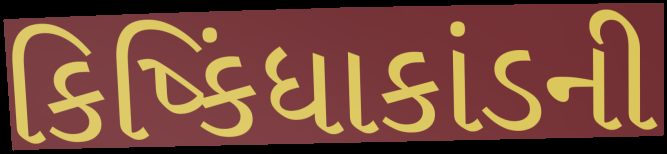
કિષ્કિંધાકાંડની